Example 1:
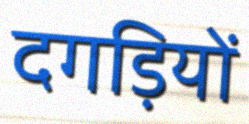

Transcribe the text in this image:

दगड़ियों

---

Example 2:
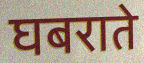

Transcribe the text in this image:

घबराते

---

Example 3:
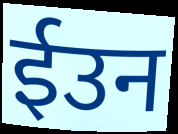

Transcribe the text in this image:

ईउन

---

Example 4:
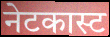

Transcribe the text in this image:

नेटकास्ट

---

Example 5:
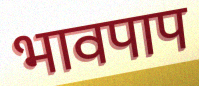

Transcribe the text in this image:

भावपाप